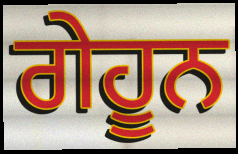
ਗੇਹੂਨ